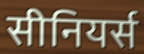
सीनियर्स